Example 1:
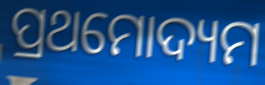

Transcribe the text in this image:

ପ୍ରଥମୋଦ୍ୟମ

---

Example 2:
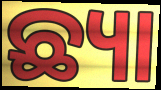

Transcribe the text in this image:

ଛ୍ୟା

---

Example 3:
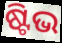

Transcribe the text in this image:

ଷ୍ଟିଭ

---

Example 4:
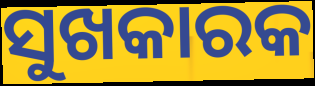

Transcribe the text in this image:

ସୁଖକାରକ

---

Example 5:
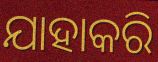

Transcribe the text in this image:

ଯାହାକରି